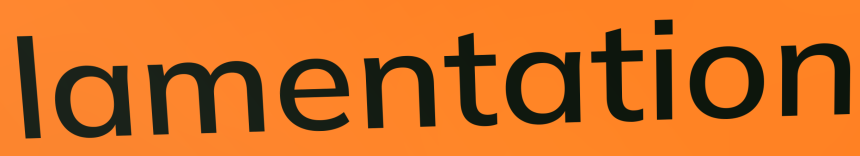
lamentation